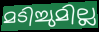
മടിച്ചുമില്ല